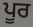
ਪੂਰ